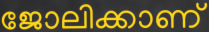
ജോലിക്കാണ്